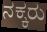
ನಕ್ಕರು